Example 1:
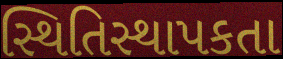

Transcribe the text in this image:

સ્થિતિસ્થાપકતા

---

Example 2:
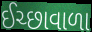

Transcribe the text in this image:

ઈચ્છાવાળા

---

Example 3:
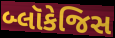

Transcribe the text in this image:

બ્લૉકેજિસ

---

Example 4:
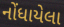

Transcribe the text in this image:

નોંધાયેલા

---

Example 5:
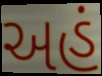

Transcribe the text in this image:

અહં